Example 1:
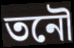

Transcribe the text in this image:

তনৌ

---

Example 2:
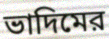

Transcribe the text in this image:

ভাদিমের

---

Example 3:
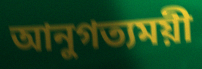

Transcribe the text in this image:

আনুগত্যময়ী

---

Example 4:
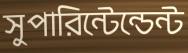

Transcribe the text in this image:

সুপারিন্টেন্ডেন্ট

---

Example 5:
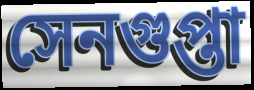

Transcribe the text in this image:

সেনগুপ্তা